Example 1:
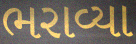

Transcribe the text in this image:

ભરાવ્યા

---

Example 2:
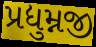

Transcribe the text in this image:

પ્રદ્યુમ્નજી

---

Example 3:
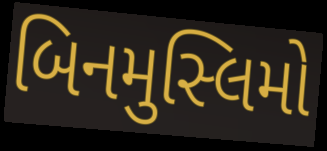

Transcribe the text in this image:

બિનમુસ્લિમો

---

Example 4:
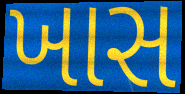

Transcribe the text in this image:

ખાસ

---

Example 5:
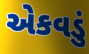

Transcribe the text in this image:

એકવડું